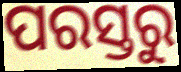
ପରସ୍ତରୁ